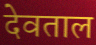
देवताल